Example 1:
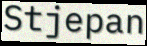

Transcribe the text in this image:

Stjepan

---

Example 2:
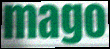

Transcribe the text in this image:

mago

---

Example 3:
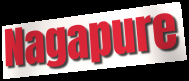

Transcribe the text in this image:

Nagapure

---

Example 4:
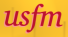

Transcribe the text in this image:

usfm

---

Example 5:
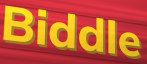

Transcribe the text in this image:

Biddle